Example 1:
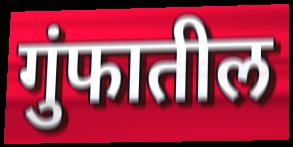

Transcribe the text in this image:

गुंफातील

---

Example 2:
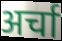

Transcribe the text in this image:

अर्चा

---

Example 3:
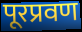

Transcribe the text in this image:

पूरप्रवण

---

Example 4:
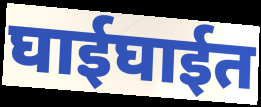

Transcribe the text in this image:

घाईघाईत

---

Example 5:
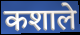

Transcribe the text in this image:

कशाले